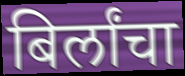
बिर्लांचा